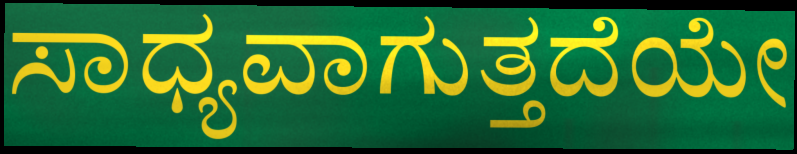
ಸಾಧ್ಯವಾಗುತ್ತದೆಯೇ